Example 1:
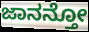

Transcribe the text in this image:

ಜಾನನ್ತೋ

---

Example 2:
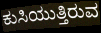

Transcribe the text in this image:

ಕುಸಿಯುತ್ತಿರುವ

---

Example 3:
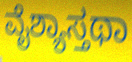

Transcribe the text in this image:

ವೈಶ್ಯಾಸ್ತಥಾ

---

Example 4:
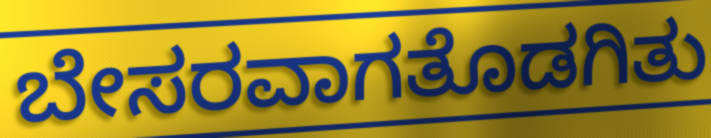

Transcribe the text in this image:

ಬೇಸರವಾಗತೊಡಗಿತು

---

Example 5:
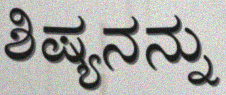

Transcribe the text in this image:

ಶಿಷ್ಯನನ್ನು